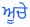
ਅੂਚੇ